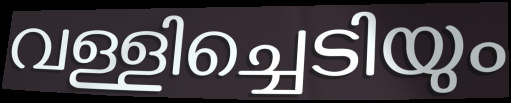
വള്ളിച്ചെടിയും